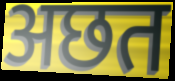
अछत